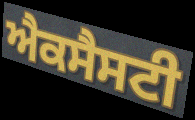
ਐਕਸੈਸਟੀ